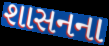
શાસનના